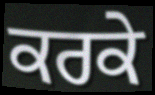
ਕਰਕੇ